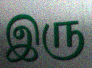
இரு